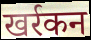
खर्रकन